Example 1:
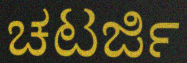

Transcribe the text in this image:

ಚಟರ್ಜಿ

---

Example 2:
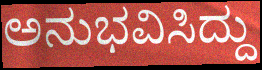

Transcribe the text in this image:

ಅನುಭವಿಸಿದ್ದು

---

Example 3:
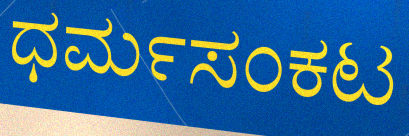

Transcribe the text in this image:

ಧರ್ಮಸಂಕಟ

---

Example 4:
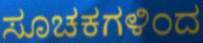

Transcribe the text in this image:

ಸೂಚಕಗಳಿಂದ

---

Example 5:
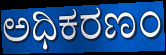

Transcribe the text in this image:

ಅಧಿಕರಣಂ